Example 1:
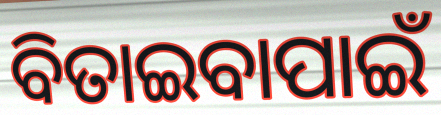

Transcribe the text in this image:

ବିତାଇବାପାଇଁ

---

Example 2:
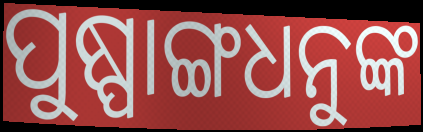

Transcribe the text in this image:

ପୁଷ୍ପାଙ୍ଗଧନୁଙ୍କ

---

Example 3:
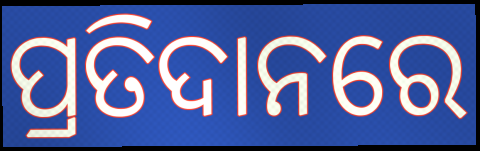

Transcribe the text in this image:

ପ୍ରତିଦାନରେ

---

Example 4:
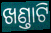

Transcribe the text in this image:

ଖଣ୍ତାଟି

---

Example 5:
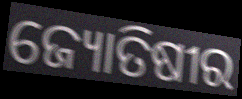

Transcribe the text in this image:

ଜ୍ୟୋତିଷୀର